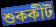
শুককীট